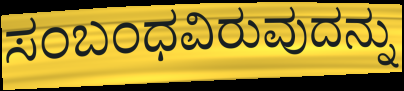
ಸಂಬಂಧವಿರುವುದನ್ನು